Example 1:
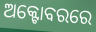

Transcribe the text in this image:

ଅକ୍ଟୋବରରେ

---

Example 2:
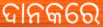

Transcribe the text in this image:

ଦାନକରେ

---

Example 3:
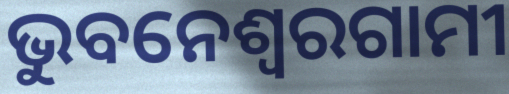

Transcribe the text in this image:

ଭୁବନେଶ୍ୱରଗାମୀ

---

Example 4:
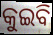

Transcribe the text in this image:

କୁଇବି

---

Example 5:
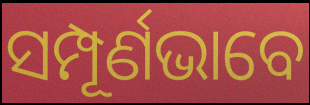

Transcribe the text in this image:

ସମ୍ପୂର୍ଣଭାବେ